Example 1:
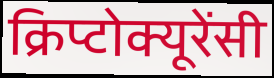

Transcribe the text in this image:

क्रिप्टोक्यूरेंसी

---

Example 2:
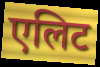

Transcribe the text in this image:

एलिट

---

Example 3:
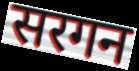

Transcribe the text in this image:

सरगन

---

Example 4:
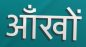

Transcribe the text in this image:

आंँखों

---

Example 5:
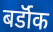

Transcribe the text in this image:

बर्डॉक